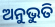
ଅନୁଭୁତି